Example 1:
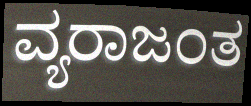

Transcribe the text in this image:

ವ್ಯರಾಜಂತ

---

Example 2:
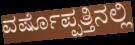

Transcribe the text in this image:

ವರ್ಷೊಪ್ಪತ್ತಿನಲ್ಲಿ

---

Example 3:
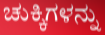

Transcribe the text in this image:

ಚುಕ್ಕಿಗಳನ್ನು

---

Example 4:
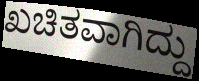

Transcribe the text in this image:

ಖಚಿತವಾಗಿದ್ದು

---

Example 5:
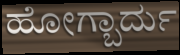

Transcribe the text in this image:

ಹೋಗ್ಬಾರ್ದು